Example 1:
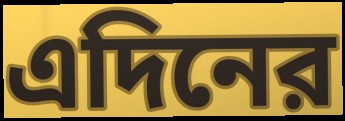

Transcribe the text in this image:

এদিনের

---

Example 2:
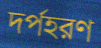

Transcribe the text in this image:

দর্পহরণ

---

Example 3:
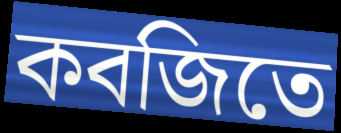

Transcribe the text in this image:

কবজিতে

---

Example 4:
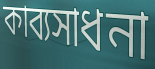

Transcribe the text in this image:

কাব্যসাধনা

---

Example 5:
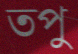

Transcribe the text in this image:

তপু